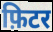
फ़िटर